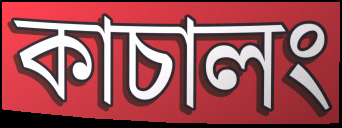
কাচালং